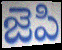
జెపి